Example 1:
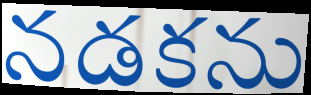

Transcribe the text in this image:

నడకను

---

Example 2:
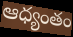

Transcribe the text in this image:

ఆధ్యంతం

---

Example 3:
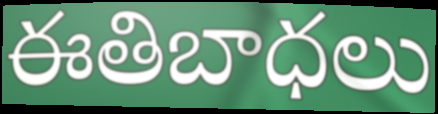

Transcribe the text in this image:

ఈతిబాధలు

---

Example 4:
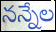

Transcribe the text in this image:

నన్నేల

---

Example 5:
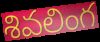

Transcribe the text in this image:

శివలింగ